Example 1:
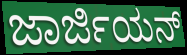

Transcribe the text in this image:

ಜಾರ್ಜಿಯನ್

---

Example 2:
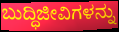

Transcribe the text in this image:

ಬುದ್ಧಿಜೀವಿಗಳನ್ನು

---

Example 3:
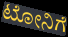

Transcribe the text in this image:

ಟೋನಿಗೆ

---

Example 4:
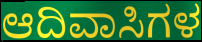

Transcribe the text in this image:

ಆದಿವಾಸಿಗಳ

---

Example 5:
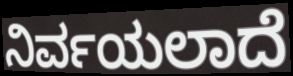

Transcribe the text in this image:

ನಿರ್ವಯಲಾದೆ